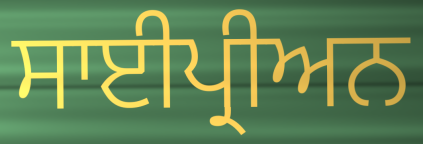
ਸਾਈਪ੍ਰੀਅਨ